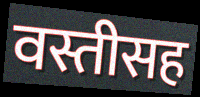
वस्तीसह